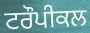
ਟਰੌਪੀਕਲ